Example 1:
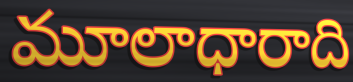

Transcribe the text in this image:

మూలాధారాది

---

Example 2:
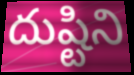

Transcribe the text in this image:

దుష్టిని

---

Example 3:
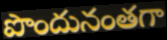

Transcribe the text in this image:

పొందునంతగా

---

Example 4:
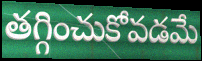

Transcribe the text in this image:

తగ్గించుకోవడమే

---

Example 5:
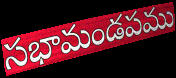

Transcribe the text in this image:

సభామండపము